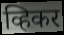
व्हिकर